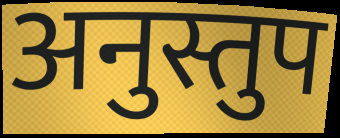
अनुस्तुप